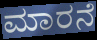
ಮಾರನೆ